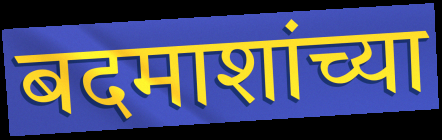
बदमाशांच्या